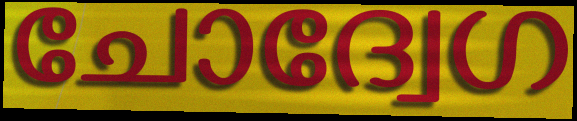
ചോദ്വേഗ